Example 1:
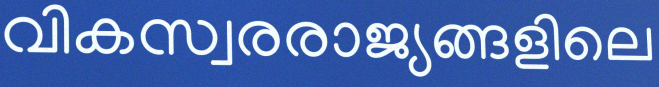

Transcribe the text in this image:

വികസ്വരരാജ്യങ്ങളിലെ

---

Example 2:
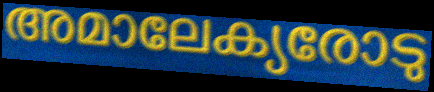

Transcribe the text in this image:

അമാലേക്യരോടു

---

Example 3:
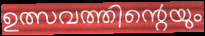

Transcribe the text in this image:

ഉത്സവത്തിന്റെയും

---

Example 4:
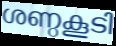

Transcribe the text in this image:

ശണ്ഠകൂടി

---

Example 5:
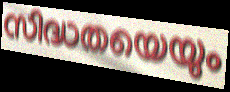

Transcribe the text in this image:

സിദ്ധതയെയും